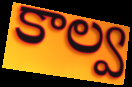
కాల్వ